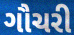
ગૌચરી